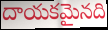
దాయకమైనది